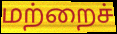
மற்றைச்